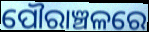
ପୌରାଞ୍ଚଳରେ